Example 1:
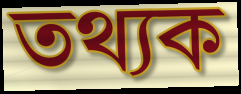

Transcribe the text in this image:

তথ্যক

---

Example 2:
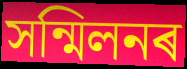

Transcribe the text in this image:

সন্মিলনৰ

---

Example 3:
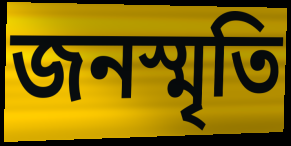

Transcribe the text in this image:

জনস্মৃতি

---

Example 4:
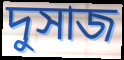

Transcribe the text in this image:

দুসাজ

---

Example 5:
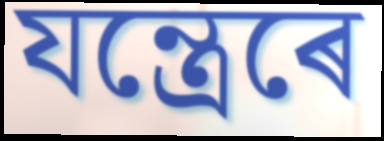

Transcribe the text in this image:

যন্ত্ৰেৰে